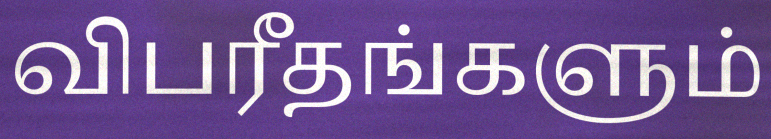
விபரீதங்களும்